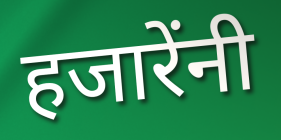
हजारेंनी